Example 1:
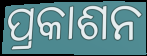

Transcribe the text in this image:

ପ୍ରକାଶନ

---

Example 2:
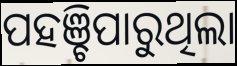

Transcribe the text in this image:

ପହଞ୍ଚିପାରୁଥିଲା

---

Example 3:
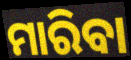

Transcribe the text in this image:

ମାରିବା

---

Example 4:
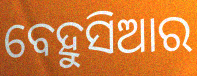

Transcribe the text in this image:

ବେହୁସିଆର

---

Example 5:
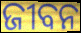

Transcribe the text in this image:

ଜୀବନ